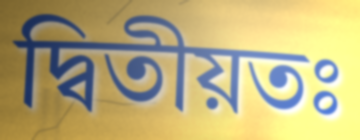
দ্বিতীয়তঃ